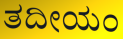
ತದೀಯಂ